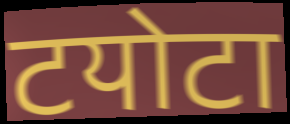
टयोटा